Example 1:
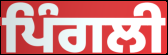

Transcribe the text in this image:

ਪਿੰਗਲੀ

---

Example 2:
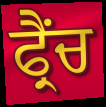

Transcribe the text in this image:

ਫ੍ਰੈਂਚ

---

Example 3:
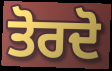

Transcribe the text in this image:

ਤੋਰਦੋ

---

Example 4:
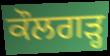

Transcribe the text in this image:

ਕੌਲਗੜ੍ਹ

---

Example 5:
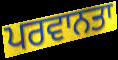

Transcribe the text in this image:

ਪਰਵਾਨਤਾ